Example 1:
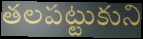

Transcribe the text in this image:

తలపట్టుకుని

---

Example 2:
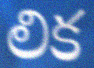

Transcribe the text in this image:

లిక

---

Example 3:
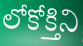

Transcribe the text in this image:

లోకోక్తిని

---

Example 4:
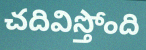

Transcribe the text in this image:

చదివిస్తోంది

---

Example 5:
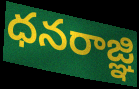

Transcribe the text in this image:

ధనరాజ్ఞి